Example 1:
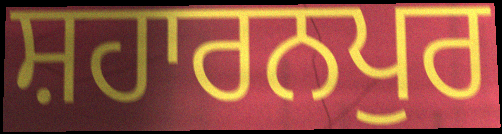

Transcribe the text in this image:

ਸ਼ਹਾਰਨਪੁਰ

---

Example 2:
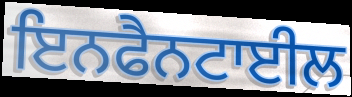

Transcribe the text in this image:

ਇਨਫੈਨਟਾਈਲ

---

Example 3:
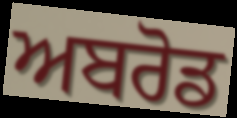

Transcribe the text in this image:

ਅਬਰੋਡ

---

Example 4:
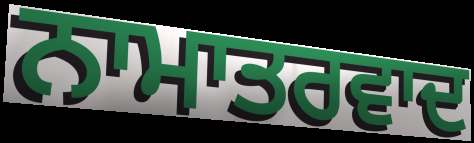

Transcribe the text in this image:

ਨਾਮਾਤਰਵਾਦ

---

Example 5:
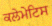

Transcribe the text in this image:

ਕਲੇਮੇਟਿਸ